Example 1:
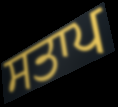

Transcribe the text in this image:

ਸਤਾਪ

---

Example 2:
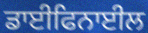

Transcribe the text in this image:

ਡਾਈਫਿਨਾਈਲ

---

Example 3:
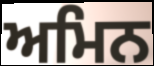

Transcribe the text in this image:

ਅਮਿਨ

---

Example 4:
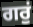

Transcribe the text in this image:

ਗਰੁਂ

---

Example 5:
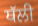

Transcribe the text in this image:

ਥੱਲੀ